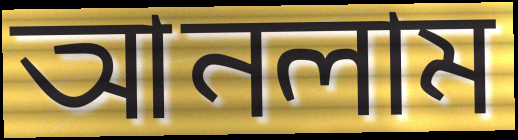
আনলাম